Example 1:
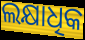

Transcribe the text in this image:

ଲକ୍ଷାଧିକ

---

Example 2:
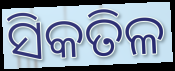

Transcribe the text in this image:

ସିକତିଳ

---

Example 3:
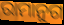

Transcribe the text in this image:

ରାମାନୁଗ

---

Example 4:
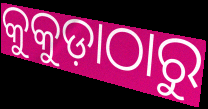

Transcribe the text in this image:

କୁକୁଡ଼ାଠାରୁ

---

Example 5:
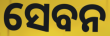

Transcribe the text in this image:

ସେବନ